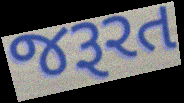
જરૂરત